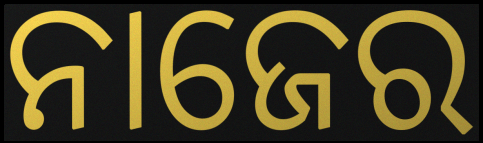
ନାଜେର